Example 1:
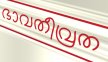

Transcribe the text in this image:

ഭാവതീവ്രത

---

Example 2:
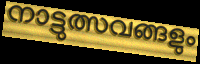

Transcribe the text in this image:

നാട്ടുത്സവങ്ങളും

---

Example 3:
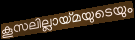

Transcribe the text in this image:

കൂസലില്ലായ്മയുടെയും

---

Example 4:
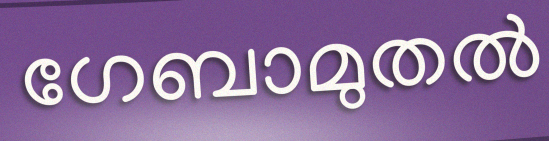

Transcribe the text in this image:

ഗേബാമുതൽ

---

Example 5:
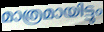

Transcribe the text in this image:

മാത്രമായിട്ടും